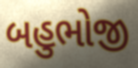
બહુભોજી